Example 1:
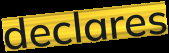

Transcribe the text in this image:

declares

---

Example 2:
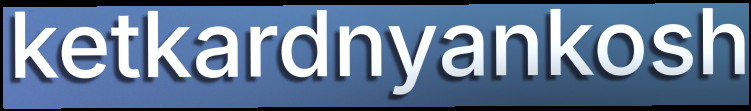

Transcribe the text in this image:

ketkardnyankosh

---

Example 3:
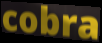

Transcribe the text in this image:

cobra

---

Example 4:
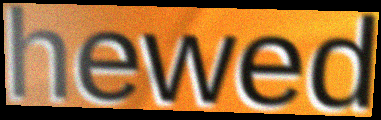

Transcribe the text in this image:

hewed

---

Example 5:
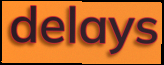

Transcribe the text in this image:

delays